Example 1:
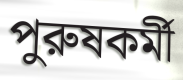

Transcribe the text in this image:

পুরুষকর্মী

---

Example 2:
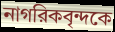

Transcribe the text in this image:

নাগরিকবৃন্দকে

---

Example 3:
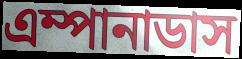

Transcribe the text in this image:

এম্পানাডাস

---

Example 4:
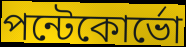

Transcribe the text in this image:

পন্টেকোর্ভো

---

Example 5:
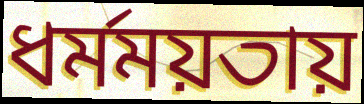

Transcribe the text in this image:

ধর্মময়তায়